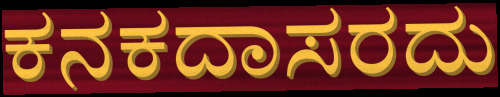
ಕನಕದಾಸರದು